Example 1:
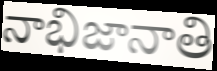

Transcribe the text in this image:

నాభిజానాతి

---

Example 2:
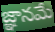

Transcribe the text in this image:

జ్ఞానమే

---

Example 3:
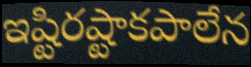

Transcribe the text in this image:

ఇష్టిరష్టాకపాలేన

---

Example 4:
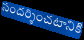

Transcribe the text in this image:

సందర్శించటానికి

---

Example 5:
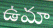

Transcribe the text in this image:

ఉమా